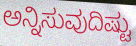
ಅನ್ನಿಸುವುದಿಷ್ಟು